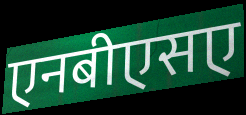
एनबीएसए